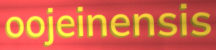
oojeinensis